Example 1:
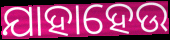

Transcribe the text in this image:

ଯାହାହେଉ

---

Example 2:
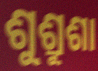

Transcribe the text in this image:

ଶୁଶ୍ରୁଶା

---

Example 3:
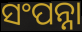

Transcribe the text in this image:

ସଂପନ୍ନା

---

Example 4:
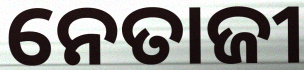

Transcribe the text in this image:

ନେତାଜୀ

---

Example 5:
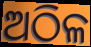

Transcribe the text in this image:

ଅଠିଳ